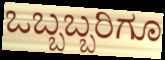
ಒಬ್ಬಬ್ಬರಿಗೂ